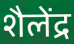
शैलेंद्र